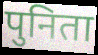
पुनिता